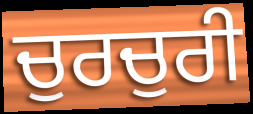
ਚੁਰਚੁਰੀ